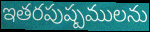
ఇతరపుష్పములను